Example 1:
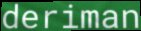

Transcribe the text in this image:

deriman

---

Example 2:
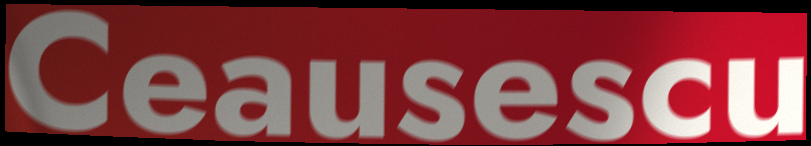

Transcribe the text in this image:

Ceausescu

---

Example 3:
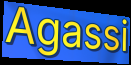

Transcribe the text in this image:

Agassi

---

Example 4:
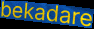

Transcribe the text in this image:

bekadare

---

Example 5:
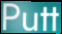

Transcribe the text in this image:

Putt